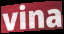
vina